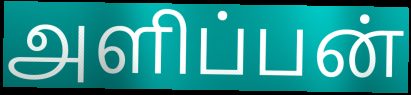
அளிப்பன்